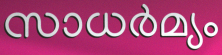
സാധർമ്യം